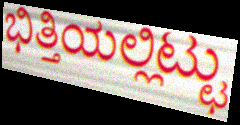
ಭಿತ್ತಿಯಲ್ಲಿಟ್ಟು